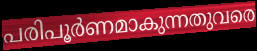
പരിപൂർണമാകുന്നതുവരെ